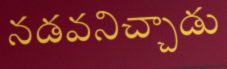
నడవనిచ్చాడు